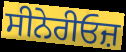
ਸੀਨੇਰੀਓਜ਼